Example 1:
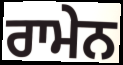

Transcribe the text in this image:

ਰਾਮੇਨ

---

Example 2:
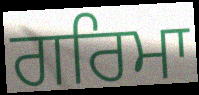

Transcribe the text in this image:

ਗਰਿਮਾ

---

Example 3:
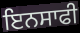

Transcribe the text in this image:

ਇਨਸਾਫੀ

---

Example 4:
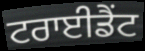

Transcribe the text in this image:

ਟਰਾਈਡੈਂਟ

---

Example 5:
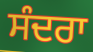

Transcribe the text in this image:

ਸੰਦਰਾ